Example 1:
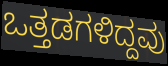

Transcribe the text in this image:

ಒತ್ತಡಗಳಿದ್ದವು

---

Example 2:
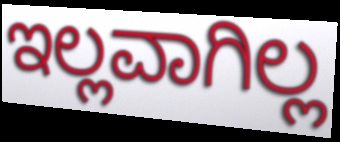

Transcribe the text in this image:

ಇಲ್ಲವಾಗಿಲ್ಲ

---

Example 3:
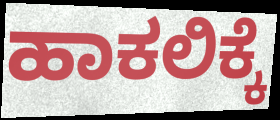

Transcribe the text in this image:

ಹಾಕಲಿಕ್ಕೆ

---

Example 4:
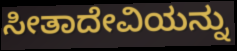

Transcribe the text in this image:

ಸೀತಾದೇವಿಯನ್ನು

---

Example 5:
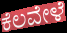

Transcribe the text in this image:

ಕೆಲವೇಳೆ